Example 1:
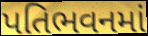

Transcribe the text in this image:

પતિભવનમાં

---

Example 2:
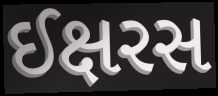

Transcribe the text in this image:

ઈક્ષરસ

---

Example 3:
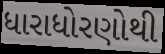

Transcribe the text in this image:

ધારાધોરણોથી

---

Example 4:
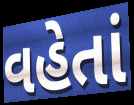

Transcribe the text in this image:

વહેતાં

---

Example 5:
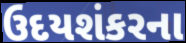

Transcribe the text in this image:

ઉદયશંકરના